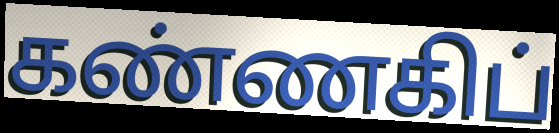
கண்ணகிப்